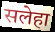
सलेहा